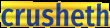
crusheth